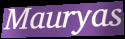
Mauryas